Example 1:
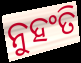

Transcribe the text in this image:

ନୁହଂତି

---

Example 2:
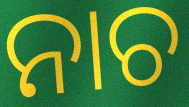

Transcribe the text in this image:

ନାଚ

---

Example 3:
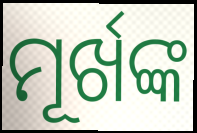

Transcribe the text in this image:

ମୂର୍ଖଙ୍କ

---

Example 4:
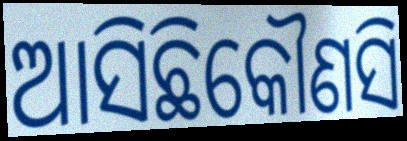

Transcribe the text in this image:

ଆସିଛିକୌଣସି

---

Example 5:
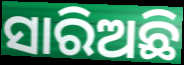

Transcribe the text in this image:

ସାରିଅଛି